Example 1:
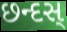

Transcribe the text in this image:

છન્દસ્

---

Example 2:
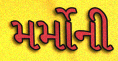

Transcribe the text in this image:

મર્મોની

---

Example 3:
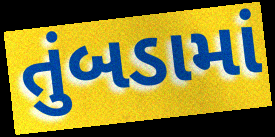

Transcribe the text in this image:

તુંબડામાં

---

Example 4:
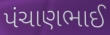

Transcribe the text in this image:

પંચાણભાઈ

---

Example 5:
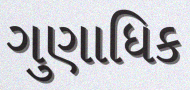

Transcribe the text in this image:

ગુણાધિક